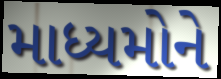
માધ્યમોને